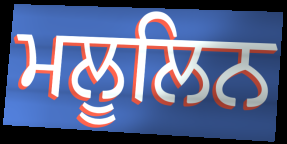
ਮਲੂਲਿਨ